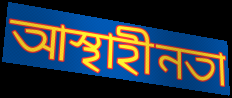
আস্থাহীনতা